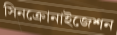
সিনক্রোনাইজেশন